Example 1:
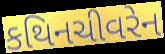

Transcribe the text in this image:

કથિનચીવરેન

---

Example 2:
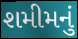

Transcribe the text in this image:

શમીમનું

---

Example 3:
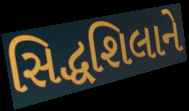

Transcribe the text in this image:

સિદ્ધશિલાને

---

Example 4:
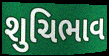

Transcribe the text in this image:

શુચિભાવ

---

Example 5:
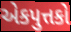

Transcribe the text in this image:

એકપુત્તકો